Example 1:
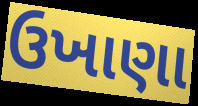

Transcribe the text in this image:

ઉખાણા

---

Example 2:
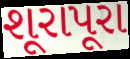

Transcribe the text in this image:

શૂરાપૂરા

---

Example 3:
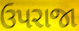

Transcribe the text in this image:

ઉપરાજા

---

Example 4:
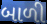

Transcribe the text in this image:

બાળી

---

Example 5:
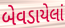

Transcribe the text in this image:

બેવડાયેલાં